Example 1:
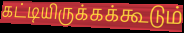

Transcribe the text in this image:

கட்டியிருக்கக்கூடும்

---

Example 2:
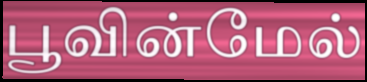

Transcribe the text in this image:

பூவின்மேல்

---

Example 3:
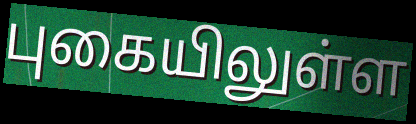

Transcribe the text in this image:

புகையிலுள்ள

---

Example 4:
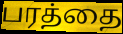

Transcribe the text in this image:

பரத்தை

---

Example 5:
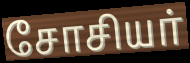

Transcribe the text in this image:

சோசியர்